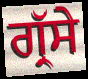
ਗ੍ਰੱਸੇ